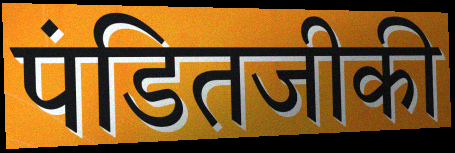
पंडितजीकी